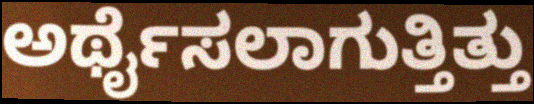
ಅರ್ಥೈಸಲಾಗುತ್ತಿತ್ತು